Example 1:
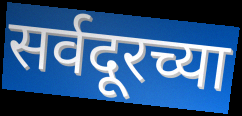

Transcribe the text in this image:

सर्वदूरच्या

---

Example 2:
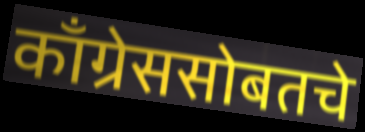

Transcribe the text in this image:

काँग्रेससोबतचे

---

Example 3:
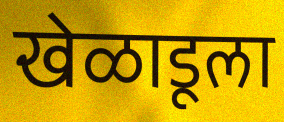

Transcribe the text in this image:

खेळाडूला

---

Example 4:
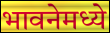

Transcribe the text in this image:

भावनेमध्ये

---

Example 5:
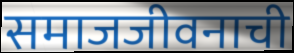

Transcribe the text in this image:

समाजजीवनाची